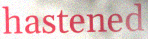
hastened